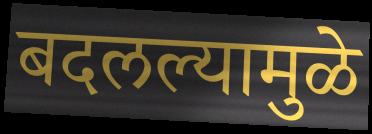
बदलल्यामुळे